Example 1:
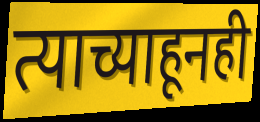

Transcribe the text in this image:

त्याच्याहूनही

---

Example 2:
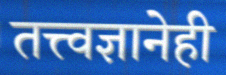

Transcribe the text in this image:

तत्त्वज्ञानेही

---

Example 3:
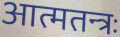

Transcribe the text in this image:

आत्मतन्त्रः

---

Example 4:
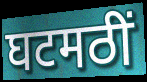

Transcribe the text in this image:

घटमठीं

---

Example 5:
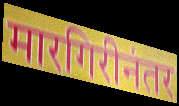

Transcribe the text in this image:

मारगिरीनंतर